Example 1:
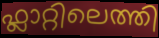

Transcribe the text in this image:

ഫ്ലാറ്റിലെത്തി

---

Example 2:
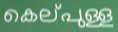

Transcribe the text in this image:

കെല്‌പുള്ള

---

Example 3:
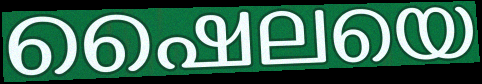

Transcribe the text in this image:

ഷൈലയെ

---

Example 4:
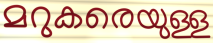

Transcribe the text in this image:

മറുകരെയുള്ള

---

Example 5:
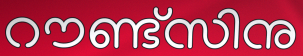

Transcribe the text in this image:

റൗണ്ട്സിനു